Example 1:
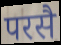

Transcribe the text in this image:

परसै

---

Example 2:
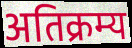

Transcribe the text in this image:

अतिक्रम्य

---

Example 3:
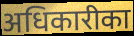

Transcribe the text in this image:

अधिकारीका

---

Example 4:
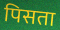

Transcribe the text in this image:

पिसता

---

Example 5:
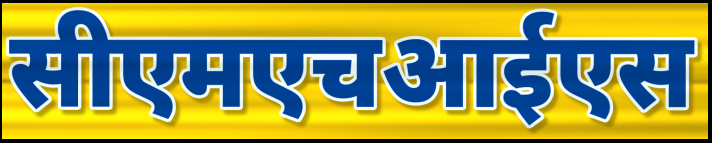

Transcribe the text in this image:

सीएमएचआईएस